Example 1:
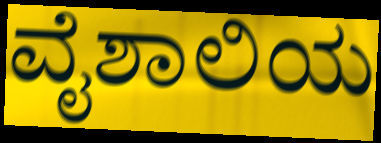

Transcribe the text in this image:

ವೈಶಾಲಿಯ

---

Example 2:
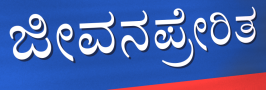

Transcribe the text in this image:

ಜೀವನಪ್ರೇರಿತ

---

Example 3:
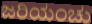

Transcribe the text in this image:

ಜರಿಯಂಚು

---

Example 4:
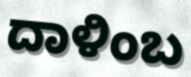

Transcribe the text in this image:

ದಾಳಿಂಬ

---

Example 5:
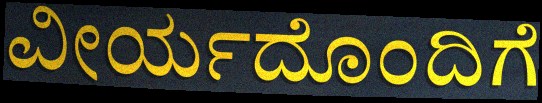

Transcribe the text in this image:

ವೀರ್ಯದೊಂದಿಗೆ